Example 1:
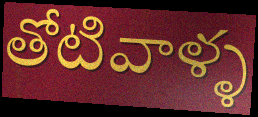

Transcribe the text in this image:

తోటివాళ్ళ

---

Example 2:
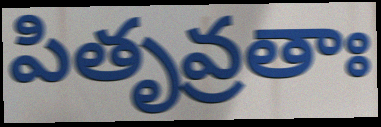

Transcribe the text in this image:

పితృవ్రతాః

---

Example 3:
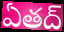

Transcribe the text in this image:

ఏతద్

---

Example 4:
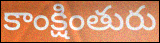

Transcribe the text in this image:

కాంక్షింతురు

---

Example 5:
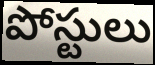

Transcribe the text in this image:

పోస్టులు